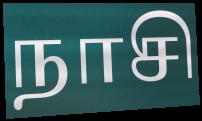
நாசி